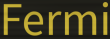
Fermi